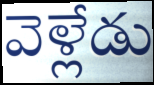
వెళ్లేడు